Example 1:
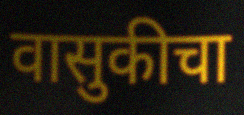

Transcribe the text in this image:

वासुकीचा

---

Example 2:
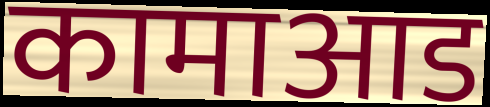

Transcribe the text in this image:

कामाआड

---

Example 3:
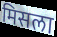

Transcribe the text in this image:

मिसला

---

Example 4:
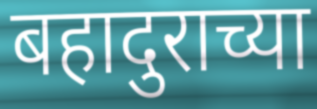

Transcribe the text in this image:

बहादुराच्या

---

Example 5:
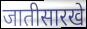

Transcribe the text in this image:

जातीसारखे